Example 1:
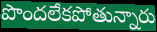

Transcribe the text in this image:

పొందలేకపోతున్నారు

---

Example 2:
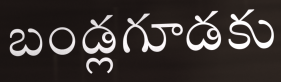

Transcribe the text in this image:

బండ్లగూడకు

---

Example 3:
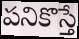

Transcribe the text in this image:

పనికొస్తే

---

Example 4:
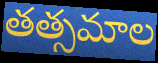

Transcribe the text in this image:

తత్సమాల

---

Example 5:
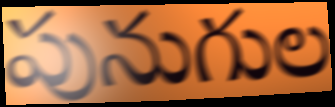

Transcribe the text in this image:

పునుగుల